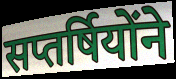
सप्तर्षियोंने